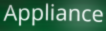
Appliance